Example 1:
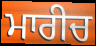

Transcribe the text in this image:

ਮਾਰੀਚ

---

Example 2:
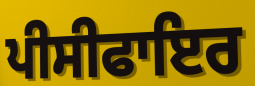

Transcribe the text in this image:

ਪੀਸੀਫਾਇਰ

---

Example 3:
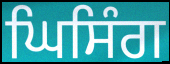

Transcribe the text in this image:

ਘਿਸਿੰਗ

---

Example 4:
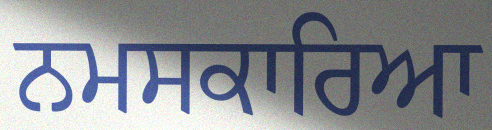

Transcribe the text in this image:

ਨਮਸਕਾਰਿਆ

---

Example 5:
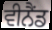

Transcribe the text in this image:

ਵੀਨੈਂਡ